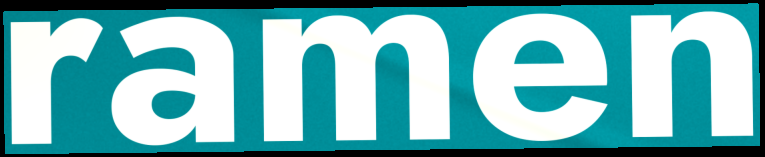
ramen